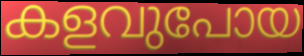
കളവുപോയ